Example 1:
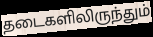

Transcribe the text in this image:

தடைகளிலிருந்தும்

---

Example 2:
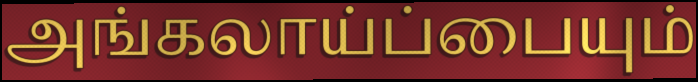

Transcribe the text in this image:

அங்கலாய்ப்பையும்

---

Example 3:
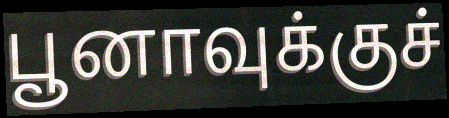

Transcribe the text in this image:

பூனாவுக்குச்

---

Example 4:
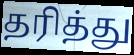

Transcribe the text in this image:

தரித்து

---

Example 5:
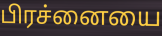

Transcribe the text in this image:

பிரச்னையை